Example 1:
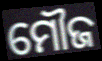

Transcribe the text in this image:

ମୌଜ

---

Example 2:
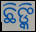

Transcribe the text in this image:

ଛିଙ୍କି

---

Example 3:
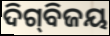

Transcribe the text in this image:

ଦିଗ୍‍ବିଜୟ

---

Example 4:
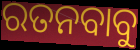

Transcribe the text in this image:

ରତନବାବୁ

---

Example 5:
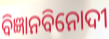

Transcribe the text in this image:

ବିଜ୍ଞାନବିନୋଦୀ